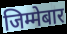
जिम्मेबार